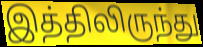
இத்திலிருந்து